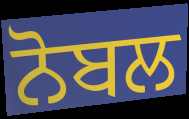
ਨੋਬਲ